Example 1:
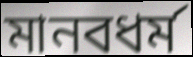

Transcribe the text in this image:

মানবধর্ম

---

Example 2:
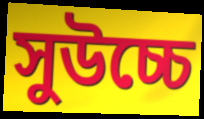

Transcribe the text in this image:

সুউচ্চে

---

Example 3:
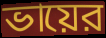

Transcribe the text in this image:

ভায়ের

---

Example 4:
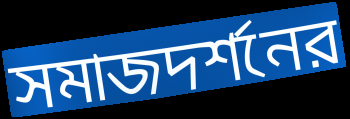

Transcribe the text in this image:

সমাজদর্শনের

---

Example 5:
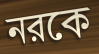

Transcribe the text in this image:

নরকে